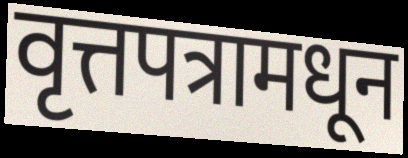
वृत्तपत्रामधून